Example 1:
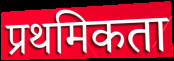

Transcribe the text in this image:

प्रथमिकता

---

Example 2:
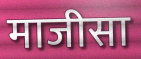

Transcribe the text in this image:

माजीसा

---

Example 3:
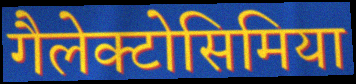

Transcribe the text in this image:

गैलेक्टोसिमिया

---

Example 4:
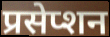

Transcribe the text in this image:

प्रसेप्शन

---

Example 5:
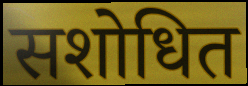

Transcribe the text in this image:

सशोधित